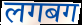
लगबग